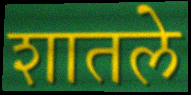
शातले